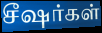
சீஷர்கள்